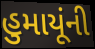
હુમાયૂંની